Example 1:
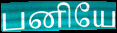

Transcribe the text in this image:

பனியே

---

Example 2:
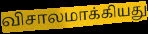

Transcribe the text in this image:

விசாலமாக்கியது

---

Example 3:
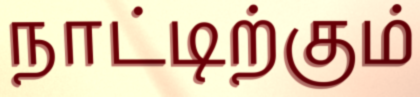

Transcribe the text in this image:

நாட்டிற்கும்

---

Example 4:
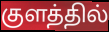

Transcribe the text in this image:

குளத்தில்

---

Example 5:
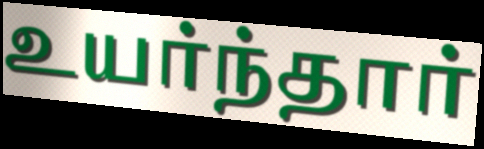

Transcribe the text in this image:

உயர்ந்தார்